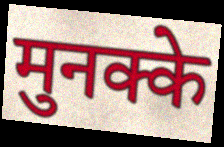
मुनक्के